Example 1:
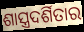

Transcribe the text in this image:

ଶାସ୍ତ୍ରଦର୍ଶିତାର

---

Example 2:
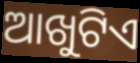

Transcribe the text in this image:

ଆଖୁଟିଏ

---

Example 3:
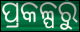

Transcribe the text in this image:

ପ୍ରକଳ୍ପରୁ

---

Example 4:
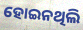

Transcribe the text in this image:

ହୋଇନଥିଲି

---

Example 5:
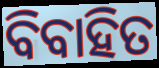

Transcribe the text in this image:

ବିବାହିତ